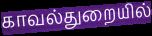
காவல்துறையில்